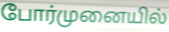
போர்முனையில்